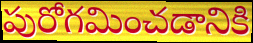
పురోగమించడానికి